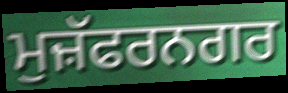
ਮੁਜ਼ੱਫਰਨਗਰ